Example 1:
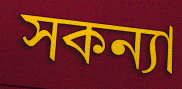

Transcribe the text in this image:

সকন্যা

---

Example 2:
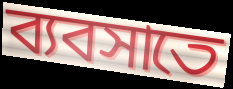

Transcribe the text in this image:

ব্যবসাতে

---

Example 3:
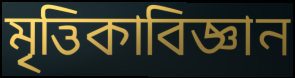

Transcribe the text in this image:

মৃত্তিকাবিজ্ঞান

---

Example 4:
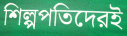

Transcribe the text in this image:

শিল্পপতিদেরই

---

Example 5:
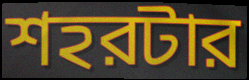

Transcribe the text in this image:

শহরটার